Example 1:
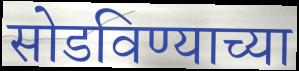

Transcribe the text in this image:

सोडविण्याच्या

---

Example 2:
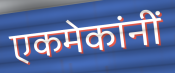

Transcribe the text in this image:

एकमेकांनीं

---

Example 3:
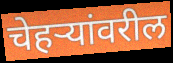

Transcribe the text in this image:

चेहऱ्यांवरील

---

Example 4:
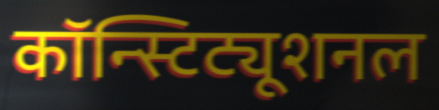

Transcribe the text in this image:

कॉन्स्टिट्यूशनल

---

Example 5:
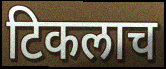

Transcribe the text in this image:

टिकलाच